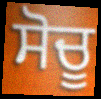
ਸੋਚੂ